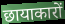
छायाकारों